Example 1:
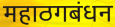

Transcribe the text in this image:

महाठगबंधन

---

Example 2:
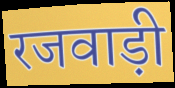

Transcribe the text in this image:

रजवाड़ी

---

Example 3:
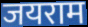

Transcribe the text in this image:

जयराम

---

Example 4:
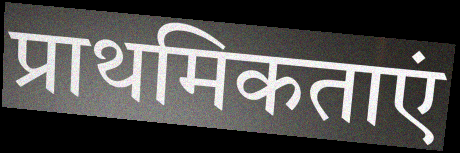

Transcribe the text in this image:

प्राथमिकताएं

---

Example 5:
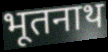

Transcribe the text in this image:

भूतनाथ